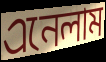
এনেলাম